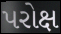
પરોક્ષ